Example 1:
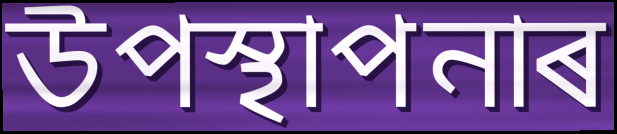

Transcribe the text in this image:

উপস্থাপনাৰ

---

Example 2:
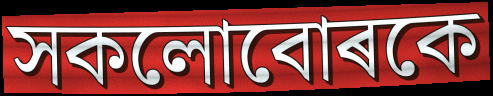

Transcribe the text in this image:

সকলোবোৰকে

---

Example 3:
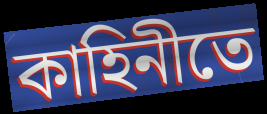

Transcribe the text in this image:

কাহিনীতে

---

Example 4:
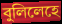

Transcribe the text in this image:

বুলিলেহে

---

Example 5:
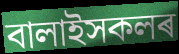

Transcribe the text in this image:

বালাইসকলৰ